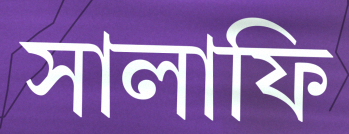
সালাফি